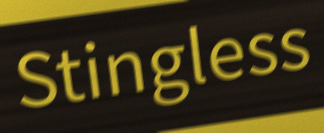
Stingless